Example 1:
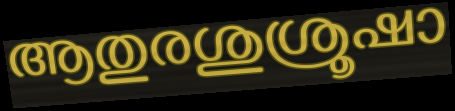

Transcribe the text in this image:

ആതുരശുശ്രൂഷാ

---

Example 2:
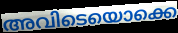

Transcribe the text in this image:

അവിടെയൊക്കെ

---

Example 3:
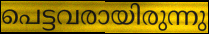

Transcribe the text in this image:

പെട്ടവരായിരുന്നു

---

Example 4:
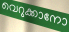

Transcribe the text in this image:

വെറുക്കാനോ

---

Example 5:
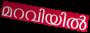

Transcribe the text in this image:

മറവിയിൽ